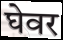
घेवर